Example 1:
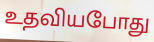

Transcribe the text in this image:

உதவியபோது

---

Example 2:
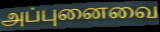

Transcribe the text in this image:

அப்புனைவை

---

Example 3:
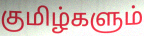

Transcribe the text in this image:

குமிழ்களும்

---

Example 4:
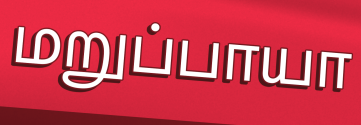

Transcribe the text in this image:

மறுப்பாயா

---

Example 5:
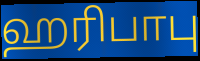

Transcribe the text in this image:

ஹரிபாபு